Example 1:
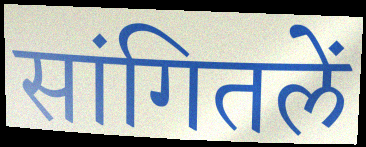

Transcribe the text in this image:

सांगितलें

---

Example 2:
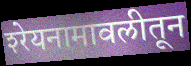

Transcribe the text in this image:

श्रेयनामावलीतून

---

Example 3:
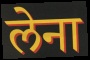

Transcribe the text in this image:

लेना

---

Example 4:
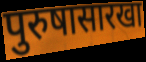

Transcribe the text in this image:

पुरुषासारखा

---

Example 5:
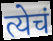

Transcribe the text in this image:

त्येचं